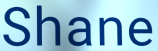
Shane